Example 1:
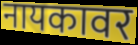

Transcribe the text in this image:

नायकावर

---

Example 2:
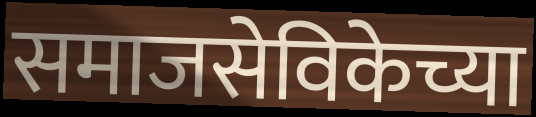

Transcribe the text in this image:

समाजसेविकेच्या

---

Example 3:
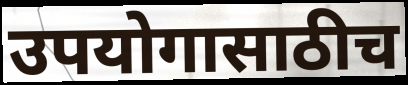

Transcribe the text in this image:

उपयोगासाठीच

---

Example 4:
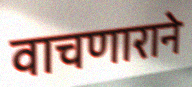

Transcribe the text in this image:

वाचणाराने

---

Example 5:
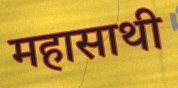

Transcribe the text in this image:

महासाथी